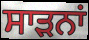
ਸਾੜਨਾਂ